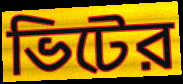
ভিটের